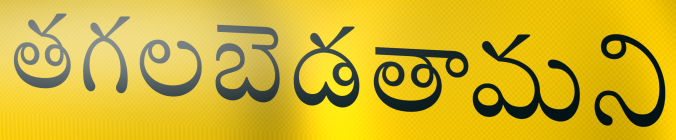
తగలబెడతామని